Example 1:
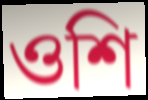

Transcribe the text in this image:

ওশি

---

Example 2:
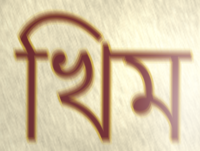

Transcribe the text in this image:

খিম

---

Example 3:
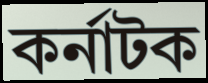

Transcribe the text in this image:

কর্নাটক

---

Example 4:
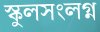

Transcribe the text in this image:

স্কুলসংলগ্ন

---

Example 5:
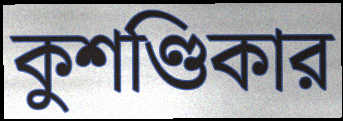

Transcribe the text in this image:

কুশণ্ডিকার